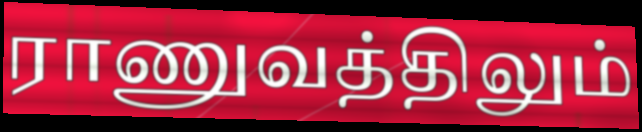
ராணுவத்திலும்